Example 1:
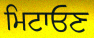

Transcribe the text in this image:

ਮਿਟਾਓਣ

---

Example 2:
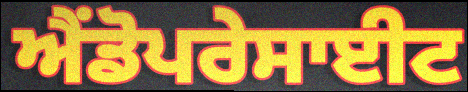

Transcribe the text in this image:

ਐਂਡੋਪਰੇਸਾਈਟ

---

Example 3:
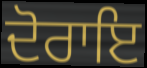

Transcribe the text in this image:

ਦੋਰਾਇ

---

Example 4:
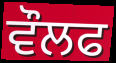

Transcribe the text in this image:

ਵੌਲਫ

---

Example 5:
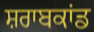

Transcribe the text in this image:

ਸ਼ਰਾਬਕਾਂਡ